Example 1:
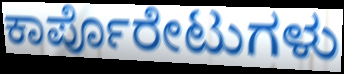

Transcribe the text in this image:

ಕಾರ್ಪೊರೇಟುಗಳು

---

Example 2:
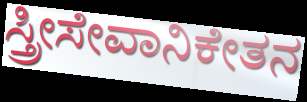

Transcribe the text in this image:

ಸ್ತ್ರೀಸೇವಾನಿಕೇತನ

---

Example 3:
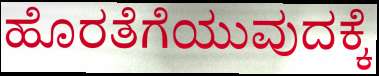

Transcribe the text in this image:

ಹೊರತೆಗೆಯುವುದಕ್ಕೆ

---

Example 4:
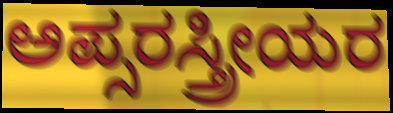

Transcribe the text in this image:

ಅಪ್ಸರಸ್ತ್ರೀಯರ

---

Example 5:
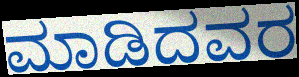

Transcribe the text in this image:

ಮಾಡಿದವರ